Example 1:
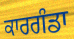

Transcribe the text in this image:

ਕਾਰਗੰਡਾ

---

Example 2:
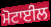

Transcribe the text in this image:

ਮੋਟਾਈਲ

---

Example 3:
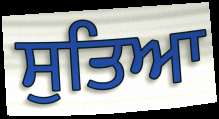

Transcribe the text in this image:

ਸੁਤਿਆ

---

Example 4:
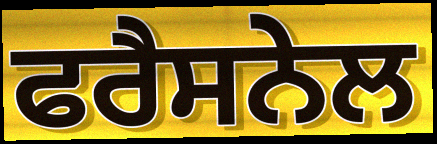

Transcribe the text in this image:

ਫਰੈਸਨੇਲ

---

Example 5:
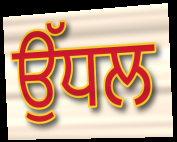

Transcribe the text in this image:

ਉੱਧਲ